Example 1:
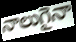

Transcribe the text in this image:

నాలుగైనా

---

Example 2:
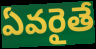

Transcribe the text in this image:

ఏవరైతే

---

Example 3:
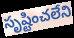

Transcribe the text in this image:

సృష్టించలేని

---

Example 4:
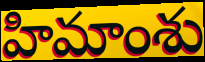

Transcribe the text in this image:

హిమాంశు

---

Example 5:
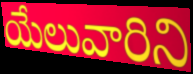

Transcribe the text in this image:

యేలువారిని